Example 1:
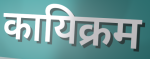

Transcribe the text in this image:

कायिक्रम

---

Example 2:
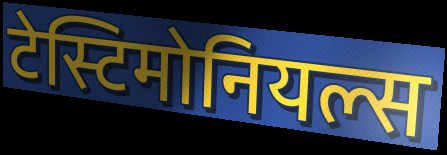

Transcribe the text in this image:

टेस्टिमोनियल्स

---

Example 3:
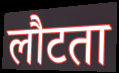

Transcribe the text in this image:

लौटता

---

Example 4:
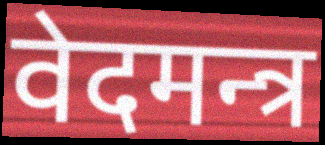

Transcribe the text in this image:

वेदमन्त्र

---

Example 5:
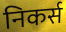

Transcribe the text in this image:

निकर्स